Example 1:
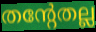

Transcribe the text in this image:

തന്റേതല്ല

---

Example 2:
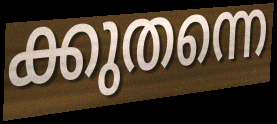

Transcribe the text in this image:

ക്കുതന്നെ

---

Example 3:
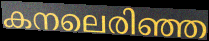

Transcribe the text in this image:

കനലെരിഞ്ഞ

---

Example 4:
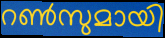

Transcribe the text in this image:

റൺസുമായി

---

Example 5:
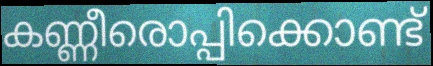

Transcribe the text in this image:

കണ്ണീരൊപ്പിക്കൊണ്ട്